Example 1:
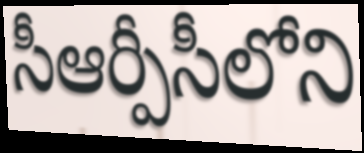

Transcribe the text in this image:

సీఆర్పీసీలోని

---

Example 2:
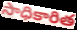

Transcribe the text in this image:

సాధికారిత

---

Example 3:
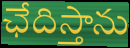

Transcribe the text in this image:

ఛేదిస్తాను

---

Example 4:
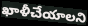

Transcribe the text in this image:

ఖాళీచేయాలని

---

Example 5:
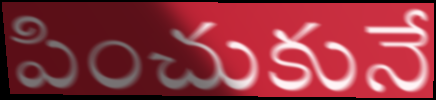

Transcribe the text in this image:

పించుకునే